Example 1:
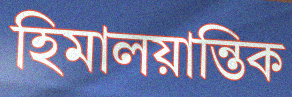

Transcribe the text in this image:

হিমালয়ান্তিক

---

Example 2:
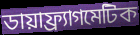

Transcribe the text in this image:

ডায়াফ্র্যাগমেটিক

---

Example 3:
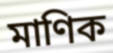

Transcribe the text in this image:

মাণিক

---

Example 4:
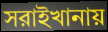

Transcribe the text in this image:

সরাইখানায়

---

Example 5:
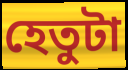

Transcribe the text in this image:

হেতুটা